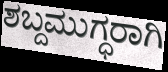
ಶಬ್ದಮುಗ್ಧರಾಗಿ